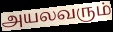
அயலவரும்